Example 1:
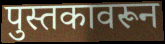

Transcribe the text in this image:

पुस्तकावरून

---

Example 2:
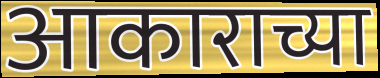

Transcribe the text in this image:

आकाराच्या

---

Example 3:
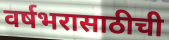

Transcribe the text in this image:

वर्षभरासाठीची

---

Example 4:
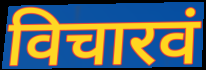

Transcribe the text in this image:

विचारवं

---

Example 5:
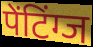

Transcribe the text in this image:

पेंटिंग्ज